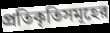
প্রতিকৃতিসমূহের